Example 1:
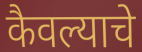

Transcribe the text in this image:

कैवल्याचे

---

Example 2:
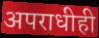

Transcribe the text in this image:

अपराधीही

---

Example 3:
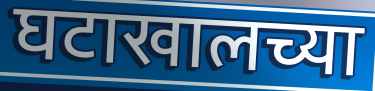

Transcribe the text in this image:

घटाखालच्या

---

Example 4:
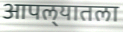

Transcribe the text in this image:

आपल्यातला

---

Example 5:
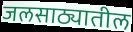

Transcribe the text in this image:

जलसाठ्यातील